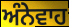
ਅੰਨੇਵਾਹ